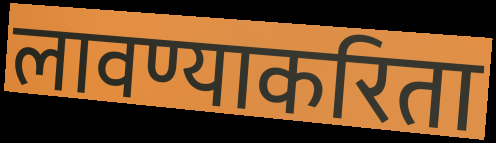
लावण्याकरिता